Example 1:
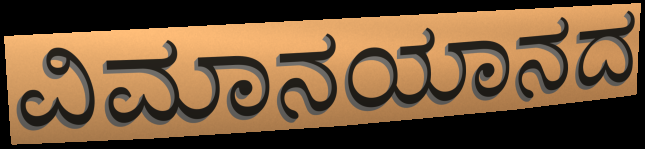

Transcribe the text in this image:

ವಿಮಾನಯಾನದ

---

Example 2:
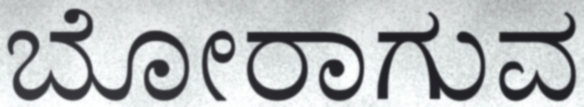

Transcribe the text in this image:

ಬೋರಾಗುವ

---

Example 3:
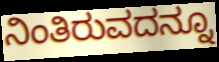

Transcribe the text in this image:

ನಿಂತಿರುವದನ್ನೂ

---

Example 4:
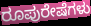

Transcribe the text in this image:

ರೂಪುರೇಷೆಗಳು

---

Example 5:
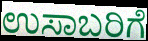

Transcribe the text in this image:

ಉಸಾಬರಿಗೆ